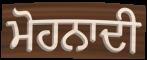
ਮੋਹਨਾਦੀ